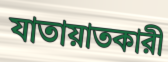
যাতায়াতকারী